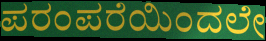
ಪರಂಪರೆಯಿಂದಲೇ